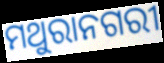
ମଥୁରାନଗରୀ